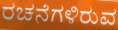
ರಚನೆಗಳಿರುವ